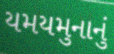
યમયમુનાનું